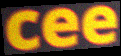
cee